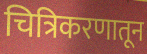
चित्रिकरणातून